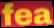
fea